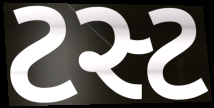
ટસ્ટ